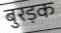
बुरड़क